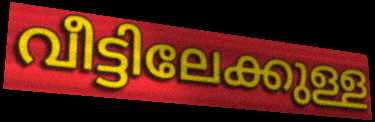
വീട്ടിലേക്കുള്ള